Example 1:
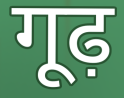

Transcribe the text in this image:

गूढ़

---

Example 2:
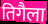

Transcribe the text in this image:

तिगैला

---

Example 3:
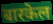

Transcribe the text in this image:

बारकेल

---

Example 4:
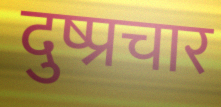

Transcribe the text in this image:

दुष्प्रचार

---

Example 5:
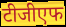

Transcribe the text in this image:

टीजीएफ